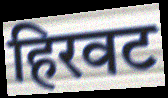
हिरवट